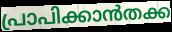
പ്രാപിക്കാൻതക്ക